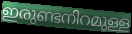
ഇരുണ്ടനിറമുള്ള